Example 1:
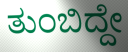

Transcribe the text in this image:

ತುಂಬಿದ್ದೇ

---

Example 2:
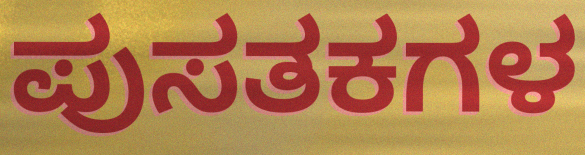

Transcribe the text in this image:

ಪುಸತಕಗಳ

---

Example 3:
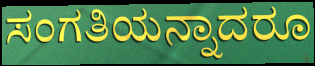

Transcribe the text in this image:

ಸಂಗತಿಯನ್ನಾದರೂ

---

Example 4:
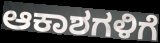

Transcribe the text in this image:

ಆಕಾಶಗಳಿಗೆ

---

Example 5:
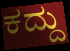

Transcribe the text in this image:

ಕದ್ದು